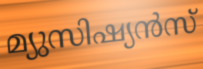
മ്യുസിഷ്യൻസ്